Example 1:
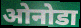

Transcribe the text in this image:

ओनोडा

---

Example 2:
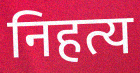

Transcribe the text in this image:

निहत्य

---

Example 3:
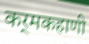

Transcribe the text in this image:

कर्मकहाणी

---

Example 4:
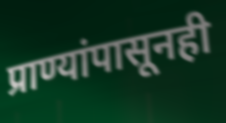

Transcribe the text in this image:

प्राण्यांपासूनही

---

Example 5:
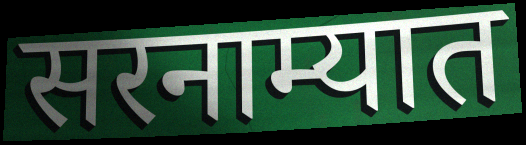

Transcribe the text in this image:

सरनाम्यात